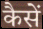
कैसें